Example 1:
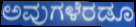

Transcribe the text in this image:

ಅವುಗಳೆರಡೂ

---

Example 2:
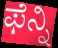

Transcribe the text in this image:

ಫೆನ್ನಿ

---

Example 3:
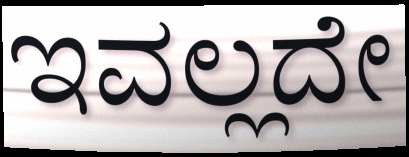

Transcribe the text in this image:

ಇವಲ್ಲದೇ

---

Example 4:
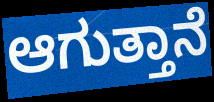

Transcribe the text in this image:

ಆಗುತ್ತಾನೆ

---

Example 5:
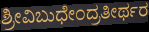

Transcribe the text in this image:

ಶ್ರೀವಿಬುಧೇಂದ್ರತೀರ್ಥರ